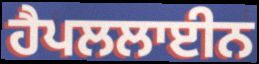
ਹੈਪਲਲਾਈਨ